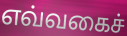
எவ்வகைச்